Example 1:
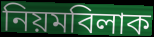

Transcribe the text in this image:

নিয়মবিলাক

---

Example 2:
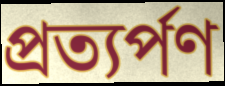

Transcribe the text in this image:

প্ৰত্যৰ্পণ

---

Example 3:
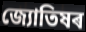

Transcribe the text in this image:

জ্যোতিষৰ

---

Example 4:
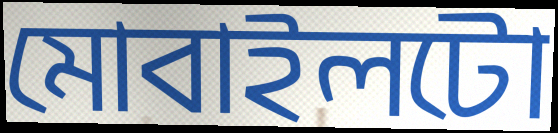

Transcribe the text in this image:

মোবাইলটো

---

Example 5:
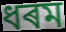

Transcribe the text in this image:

ধৰম